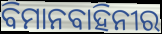
ବିମାନବାହିନୀର